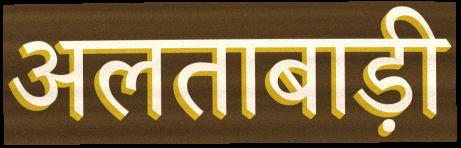
अलताबाड़ी